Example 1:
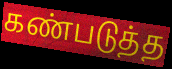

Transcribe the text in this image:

கண்படுத்த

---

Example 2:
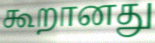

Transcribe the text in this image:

கூறானது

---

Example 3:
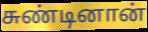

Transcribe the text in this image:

சுண்டினான்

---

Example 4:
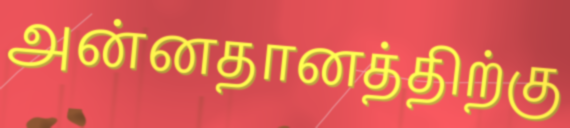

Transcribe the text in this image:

அன்னதானத்திற்கு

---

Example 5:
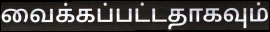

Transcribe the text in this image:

வைக்கப்பட்டதாகவும்